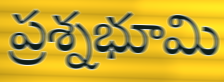
ప్రశ్నభూమి